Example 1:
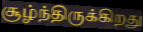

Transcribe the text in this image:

சூழ்ந்திருக்கிறது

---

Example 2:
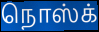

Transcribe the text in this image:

நொஸ்க்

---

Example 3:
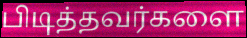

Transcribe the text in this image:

பிடித்தவர்களை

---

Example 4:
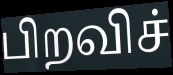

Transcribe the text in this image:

பிறவிச்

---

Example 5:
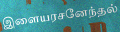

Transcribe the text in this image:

இளையரசனேந்தல்